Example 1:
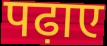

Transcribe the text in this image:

पढ़ाए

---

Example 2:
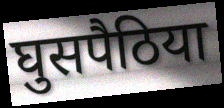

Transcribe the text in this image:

घुसपैठिया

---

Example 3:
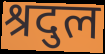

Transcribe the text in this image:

श्रदुल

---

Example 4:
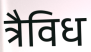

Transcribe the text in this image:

त्रैविध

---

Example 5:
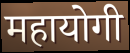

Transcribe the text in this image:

महायोगी